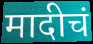
मादीचं